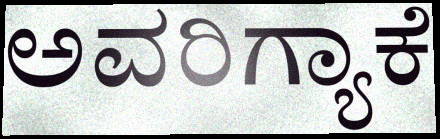
ಅವರಿಗ್ಯಾಕೆ